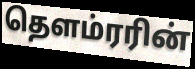
தௌம்ரரின்